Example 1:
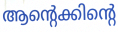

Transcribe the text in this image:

ആന്റെക്കിന്റെ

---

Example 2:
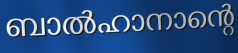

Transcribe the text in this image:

ബാൽഹാനാന്റെ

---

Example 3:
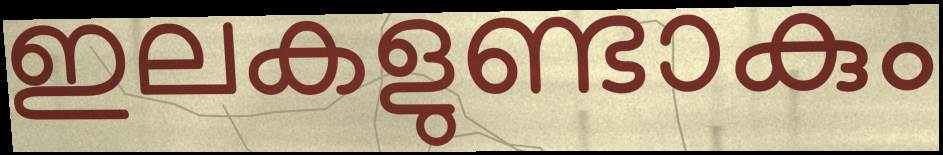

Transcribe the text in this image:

ഇലകളുണ്ടാകും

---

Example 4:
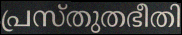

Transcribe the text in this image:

പ്രസ്തുതഭീതി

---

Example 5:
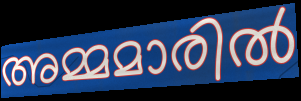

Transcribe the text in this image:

അമ്മമാരിൽ